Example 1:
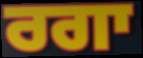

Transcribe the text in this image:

ਰਗਾ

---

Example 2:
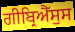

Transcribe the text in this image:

ਗੀਬ੍ਰਿਐੱਸੁਸ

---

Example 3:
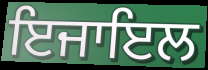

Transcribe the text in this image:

ਇਜਾਇਲ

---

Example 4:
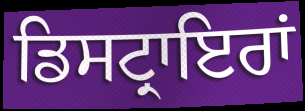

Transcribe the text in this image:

ਡਿਸਟ੍ਰਾਇਰਾਂ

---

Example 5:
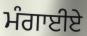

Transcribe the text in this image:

ਮੰਗਾਈਏ